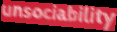
unsociability